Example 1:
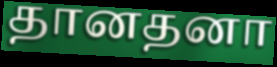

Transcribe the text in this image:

தானதனா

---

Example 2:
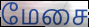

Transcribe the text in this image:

மேசை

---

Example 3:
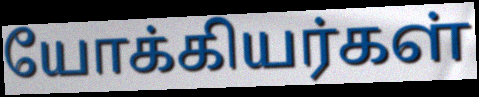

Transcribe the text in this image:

யோக்கியர்கள்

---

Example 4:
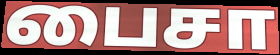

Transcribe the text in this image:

பைசா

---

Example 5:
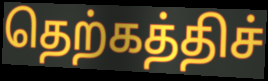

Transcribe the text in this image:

தெற்கத்திச்